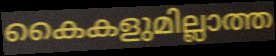
കൈകളുമില്ലാത്ത